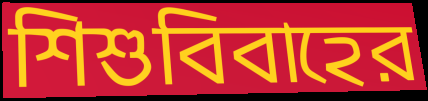
শিশুবিবাহের